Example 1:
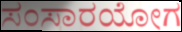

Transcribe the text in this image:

ಸಂಸಾರಯೋಗ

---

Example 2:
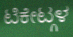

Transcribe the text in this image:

ಟಿಕೇಟ್ಗಳ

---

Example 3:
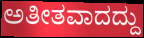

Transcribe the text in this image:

ಅತೀತವಾದದ್ದು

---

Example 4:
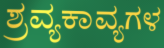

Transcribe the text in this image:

ಶ್ರವ್ಯಕಾವ್ಯಗಳ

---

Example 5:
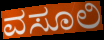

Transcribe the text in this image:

ವಸೂಲಿ